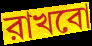
রাখবো